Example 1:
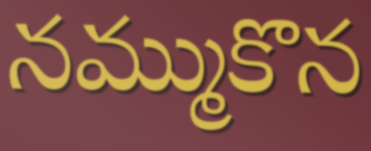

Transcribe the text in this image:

నమ్ముకొన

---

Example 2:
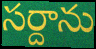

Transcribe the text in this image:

సర్దాను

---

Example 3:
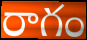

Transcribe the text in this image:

రాగం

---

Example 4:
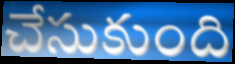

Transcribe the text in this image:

చేసుకుంది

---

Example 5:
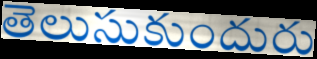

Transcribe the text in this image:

తెలుసుకుందురు